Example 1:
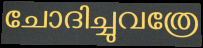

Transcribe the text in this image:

ചോദിച്ചുവത്രേ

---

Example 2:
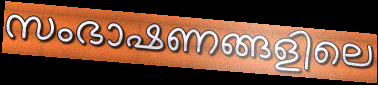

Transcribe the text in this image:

സംഭാഷണങ്ങളിലെ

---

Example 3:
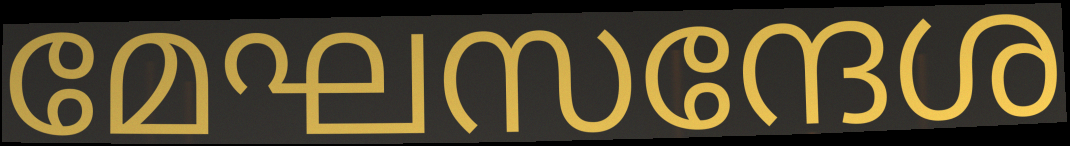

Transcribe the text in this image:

മേഘസന്ദേശ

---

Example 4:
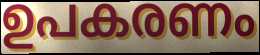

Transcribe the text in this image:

ഉപകരണം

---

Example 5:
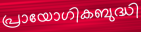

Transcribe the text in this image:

പ്രായോഗികബുദ്ധി